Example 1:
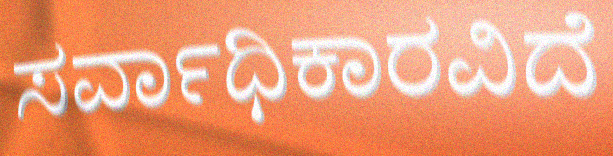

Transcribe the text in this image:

ಸರ್ವಾಧಿಕಾರವಿದೆ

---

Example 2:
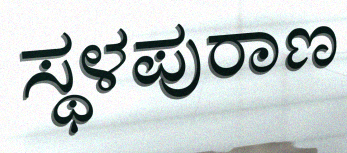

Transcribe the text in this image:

ಸ್ಥಳಪುರಾಣ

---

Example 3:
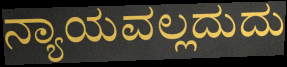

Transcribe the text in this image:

ನ್ಯಾಯವಲ್ಲದುದು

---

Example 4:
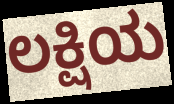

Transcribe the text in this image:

ಲಕ್ಷಿಯ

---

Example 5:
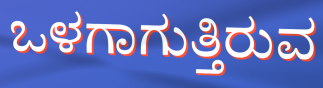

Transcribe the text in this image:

ಒಳಗಾಗುತ್ತಿರುವ